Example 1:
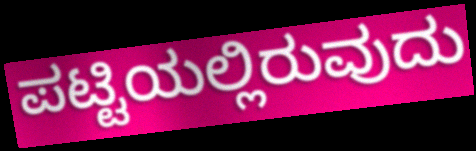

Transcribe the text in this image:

ಪಟ್ಟಿಯಲ್ಲಿರುವುದು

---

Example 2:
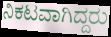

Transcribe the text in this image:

ನಿಕಟವಾಗಿದ್ದರು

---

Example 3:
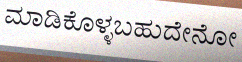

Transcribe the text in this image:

ಮಾಡಿಕೊಳ್ಳಬಹುದೇನೋ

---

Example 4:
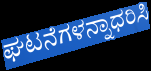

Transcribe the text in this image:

ಘಟನೆಗಳನ್ನಾಧರಿಸಿ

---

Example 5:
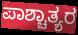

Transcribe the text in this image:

ಪಾಶ್ಚಾತ್ಯರ